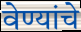
वेण्यांचे